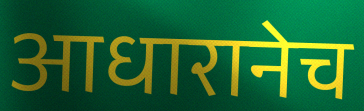
आधारानेच